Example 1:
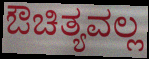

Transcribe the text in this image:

ಔಚಿತ್ಯವಲ್ಲ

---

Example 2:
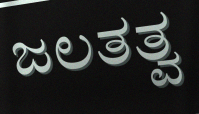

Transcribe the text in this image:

ಜಲತತ್ವ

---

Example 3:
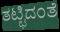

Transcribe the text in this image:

ತಟ್ಟಿದಂತೆ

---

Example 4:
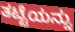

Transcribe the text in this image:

ತಟ್ಟೆಯನ್ನು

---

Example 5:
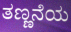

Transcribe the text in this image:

ತಣ್ಣನೆಯ